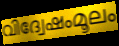
വിദ്വേഷംമൂലം